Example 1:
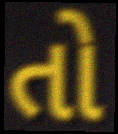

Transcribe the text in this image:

તો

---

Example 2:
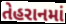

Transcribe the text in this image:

તેહરાનમાં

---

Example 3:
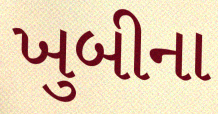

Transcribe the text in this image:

ખુબીના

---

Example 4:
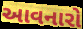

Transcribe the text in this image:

આવનારો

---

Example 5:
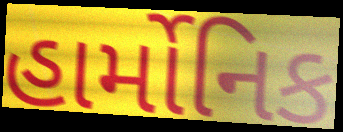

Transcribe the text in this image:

હાર્મોનિક